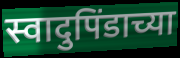
स्वादुपिंडाच्या